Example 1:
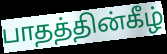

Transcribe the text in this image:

பாதத்தின்கீழ்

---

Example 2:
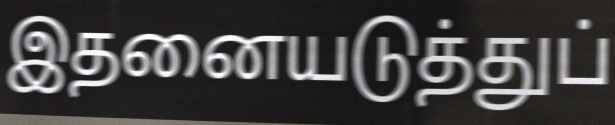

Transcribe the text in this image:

இதனையடுத்துப்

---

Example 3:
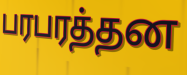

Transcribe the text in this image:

பரபரத்தன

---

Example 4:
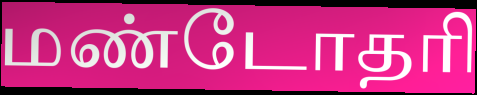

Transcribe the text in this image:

மண்டோதரி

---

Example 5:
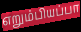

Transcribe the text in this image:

எறும்பியப்பா